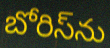
బోరిస్‌ను